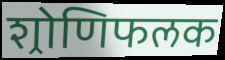
श्रोणिफलक